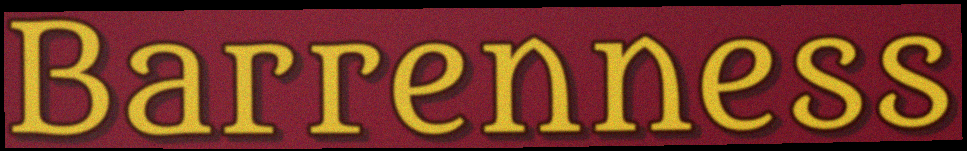
Barrenness